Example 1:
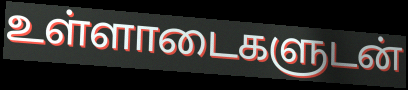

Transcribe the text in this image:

உள்ளாடைகளுடன்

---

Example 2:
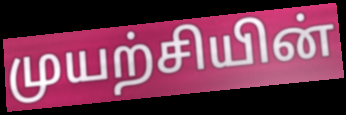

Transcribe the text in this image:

முயற்சியின்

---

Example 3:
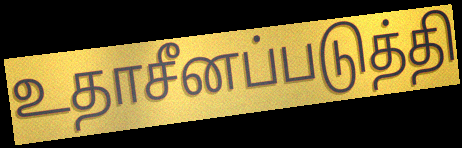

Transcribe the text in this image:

உதாசீனப்படுத்தி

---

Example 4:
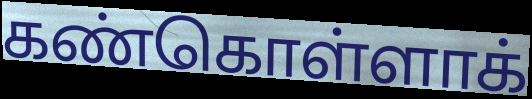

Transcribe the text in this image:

கண்கொள்ளாக்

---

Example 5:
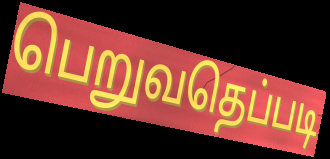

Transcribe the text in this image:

பெறுவதெப்படி